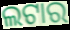
ଲଟାର